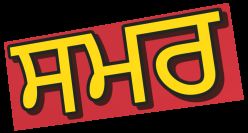
ਸਮਰ